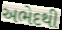
અભેદથી